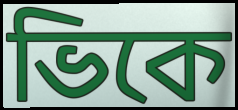
ভিকে